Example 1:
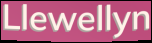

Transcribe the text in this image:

Llewellyn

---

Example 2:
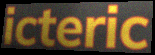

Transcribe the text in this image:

icteric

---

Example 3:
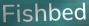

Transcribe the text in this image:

Fishbed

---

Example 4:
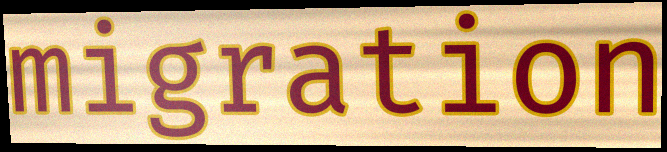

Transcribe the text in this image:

migration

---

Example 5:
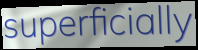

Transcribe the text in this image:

superficially